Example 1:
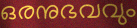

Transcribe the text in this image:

ഒരനുഭവവും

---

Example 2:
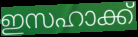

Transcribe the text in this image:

ഇസഹാക്ക്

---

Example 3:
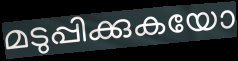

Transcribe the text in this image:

മടുപ്പിക്കുകയോ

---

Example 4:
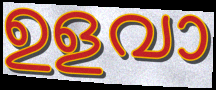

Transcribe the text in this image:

ഉളവാ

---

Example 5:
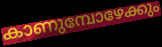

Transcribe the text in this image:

കാണുമ്പോഴേക്കും